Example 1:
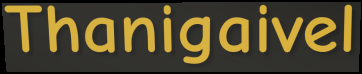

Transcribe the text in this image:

Thanigaivel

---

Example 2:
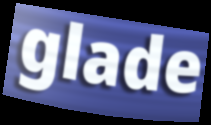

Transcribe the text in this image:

glade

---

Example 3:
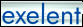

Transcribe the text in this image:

exelent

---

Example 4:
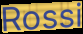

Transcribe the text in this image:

Rossi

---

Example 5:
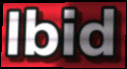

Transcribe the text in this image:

Ibid